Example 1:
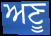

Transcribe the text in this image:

ਅਣੂ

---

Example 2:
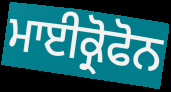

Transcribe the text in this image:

ਮਾਈਕ੍ਰੋਫੋਨ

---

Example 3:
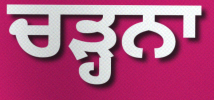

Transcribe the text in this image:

ਚੜ੍ਹਨਾ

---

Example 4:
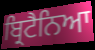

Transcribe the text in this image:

ਬ੍ਰਿਟੈਨਿਆ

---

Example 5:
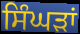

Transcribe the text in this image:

ਸਿੰਘੜਾਂ